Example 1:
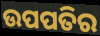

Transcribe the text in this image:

ଉପପତିର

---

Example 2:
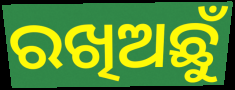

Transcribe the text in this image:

ରଖିଅଛୁଁ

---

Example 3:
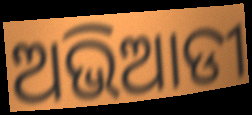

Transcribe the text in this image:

ଅଭିଆଡୀ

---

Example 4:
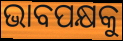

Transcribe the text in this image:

ଭାବପକ୍ଷକୁ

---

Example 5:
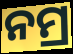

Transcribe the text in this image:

ନମ୍ର